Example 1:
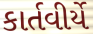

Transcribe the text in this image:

કાર્તવીર્યે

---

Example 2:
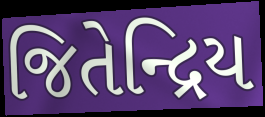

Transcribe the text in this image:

જિતેન્દ્રિય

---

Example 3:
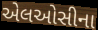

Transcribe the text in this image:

એલઓસીના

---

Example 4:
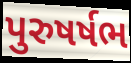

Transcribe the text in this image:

પુરુષર્ષભ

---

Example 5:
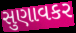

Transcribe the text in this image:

સુણાવકર